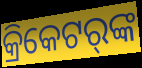
କ୍ରିକେଟର୍‌ଙ୍କ